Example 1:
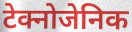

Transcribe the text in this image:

टेक्नोजेनिक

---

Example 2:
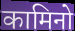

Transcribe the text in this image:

कामिनो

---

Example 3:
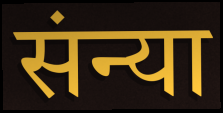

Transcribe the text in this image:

संन्या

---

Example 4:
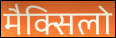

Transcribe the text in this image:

मैक्सिलो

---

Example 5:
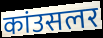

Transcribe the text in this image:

कांउसलर